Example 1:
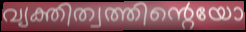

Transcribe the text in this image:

വ്യക്തിത്വത്തിന്റെയോ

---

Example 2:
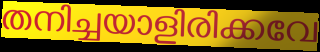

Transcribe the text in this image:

തനിച്ചയാളിരിക്കവേ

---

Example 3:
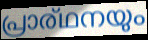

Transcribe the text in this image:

പ്രാര്ഥനയും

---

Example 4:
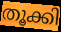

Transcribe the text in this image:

തൂക്കി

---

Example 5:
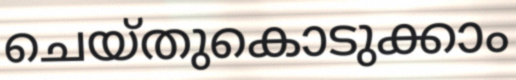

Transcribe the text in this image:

ചെയ്തുകൊടുക്കാം